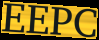
EEPC